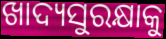
ଖାଦ୍ୟସୁରକ୍ଷାକୁ